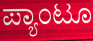
ಪ್ಯಾಂಟೂ